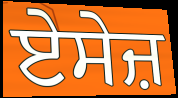
ਏਸੇਜ਼